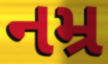
નમ્ર